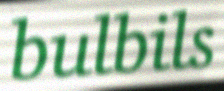
bulbils